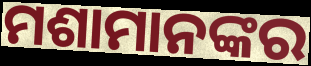
ମଶାମାନଙ୍କର